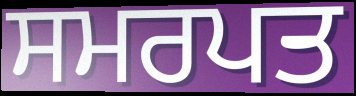
ਸਮਰਪਤ